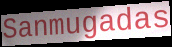
Sanmugadas